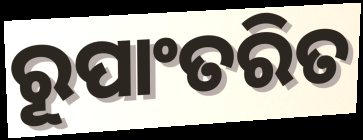
ରୂପାଂତରିତ